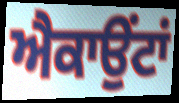
ਐਕਾਉਂਟਾਂ